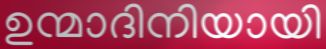
ഉന്മാദിനിയായി